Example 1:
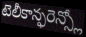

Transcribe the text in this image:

టెలీకాన్ఫరెన్స్లో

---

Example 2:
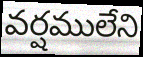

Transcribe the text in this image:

వర్షములేని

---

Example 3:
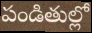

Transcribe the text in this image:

పండితుల్లో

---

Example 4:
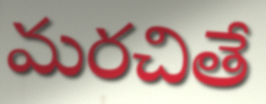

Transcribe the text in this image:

మరచితే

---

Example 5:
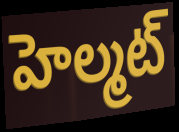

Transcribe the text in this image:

హెల్మట్